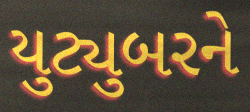
યુટ્યુબરને